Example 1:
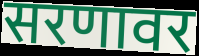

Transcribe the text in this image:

सरणावर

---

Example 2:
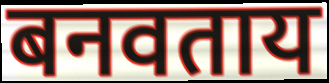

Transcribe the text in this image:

बनवताय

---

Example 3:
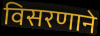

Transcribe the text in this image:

विसरणाने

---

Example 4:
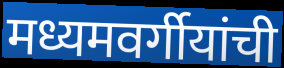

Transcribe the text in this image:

मध्यमवर्गीयांची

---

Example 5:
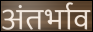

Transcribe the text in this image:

अंतर्भाव